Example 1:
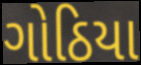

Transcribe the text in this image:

ગોઠિયા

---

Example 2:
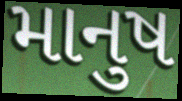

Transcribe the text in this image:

માનુષ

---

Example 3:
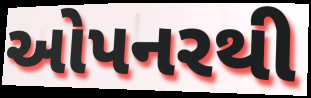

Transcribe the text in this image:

ઓપનરથી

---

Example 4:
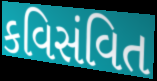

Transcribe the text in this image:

કવિસંવિત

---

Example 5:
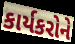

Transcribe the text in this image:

કાર્યકરોને